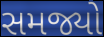
સમજ્યો